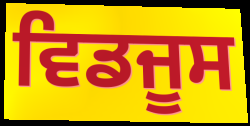
ਵਿਡਜੂਸ